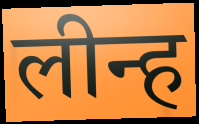
लीन्ह